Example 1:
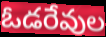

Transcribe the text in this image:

ఓడరేవుల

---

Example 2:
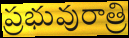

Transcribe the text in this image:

ప్రభువురాత్రి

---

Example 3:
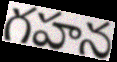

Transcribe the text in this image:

గహన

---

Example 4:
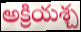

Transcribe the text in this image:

అక్రియశ్చ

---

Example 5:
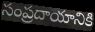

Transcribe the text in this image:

సంప్రదాయానికి